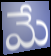
మే